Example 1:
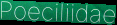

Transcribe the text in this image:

Poeciliidae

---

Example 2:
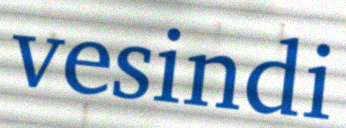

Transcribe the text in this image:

vesindi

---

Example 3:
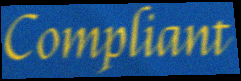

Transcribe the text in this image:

Compliant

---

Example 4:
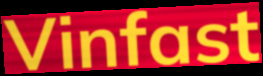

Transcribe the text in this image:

Vinfast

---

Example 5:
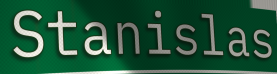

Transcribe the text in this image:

Stanislas